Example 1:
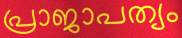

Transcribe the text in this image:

പ്രാജാപത്യം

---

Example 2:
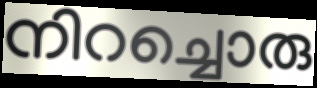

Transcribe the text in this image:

നിറച്ചൊരു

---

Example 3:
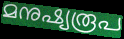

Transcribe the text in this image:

മനുഷ്യരൂപ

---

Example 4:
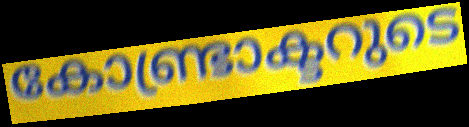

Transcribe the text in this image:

കോണ്ട്രാക്ടറുടെ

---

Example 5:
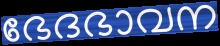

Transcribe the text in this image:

ഭേദഭാവന